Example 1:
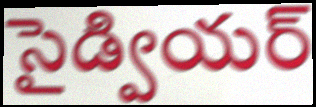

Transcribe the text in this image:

సైడ్వియర్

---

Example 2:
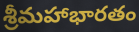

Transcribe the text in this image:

శ్రీమహాభారతం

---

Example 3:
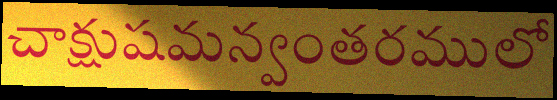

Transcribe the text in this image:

చాక్షుషమన్వంతరములో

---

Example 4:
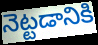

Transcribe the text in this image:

నెట్టడానికి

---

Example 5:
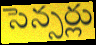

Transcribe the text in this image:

సెన్సర్లు